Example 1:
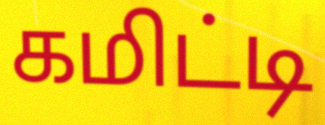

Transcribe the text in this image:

கமிட்டி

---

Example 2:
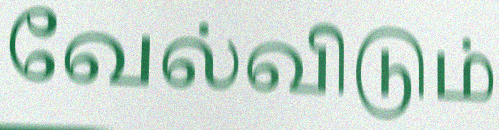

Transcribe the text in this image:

வேல்விடும்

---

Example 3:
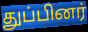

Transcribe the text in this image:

துப்பினர்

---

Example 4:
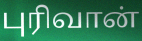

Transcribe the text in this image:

புரிவான்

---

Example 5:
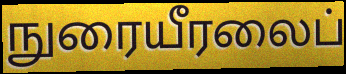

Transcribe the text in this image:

நுரையீரலைப்